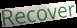
Recover